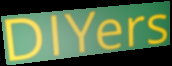
DIYers